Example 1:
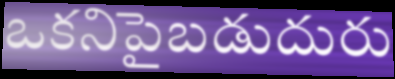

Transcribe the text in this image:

ఒకనిపైబడుదురు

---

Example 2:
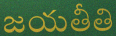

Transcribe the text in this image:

జయతీతి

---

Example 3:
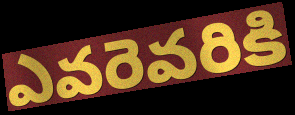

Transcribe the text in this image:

ఎవరెవరికి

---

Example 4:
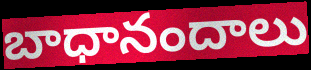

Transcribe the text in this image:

బాధానందాలు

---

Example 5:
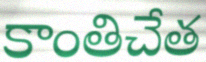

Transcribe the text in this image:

కాంతిచేత